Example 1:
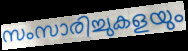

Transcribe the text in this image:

സംസാരിച്ചുകളയും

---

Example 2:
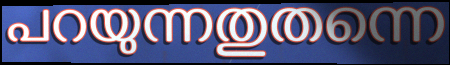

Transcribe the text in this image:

പറയുന്നതുതന്നെ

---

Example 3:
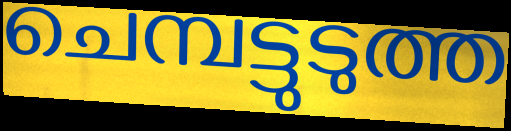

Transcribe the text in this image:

ചെമ്പട്ടുടുത്ത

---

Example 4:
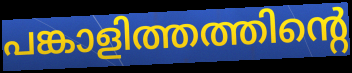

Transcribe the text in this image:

പങ്കാളിത്തത്തിന്റെ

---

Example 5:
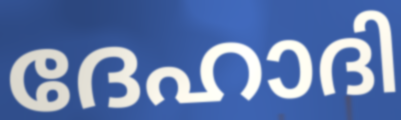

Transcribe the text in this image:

ദേഹാദി